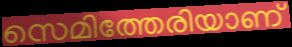
സെമിത്തേരിയാണ്